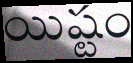
యిష్టం